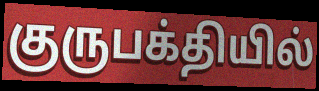
குருபக்தியில்